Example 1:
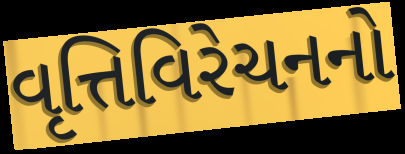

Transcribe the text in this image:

વૃત્તિવિરેચનનો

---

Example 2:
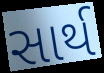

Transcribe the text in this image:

સાર્થ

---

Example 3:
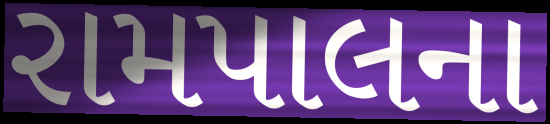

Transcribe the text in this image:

રામપાલના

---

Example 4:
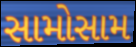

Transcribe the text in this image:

સામોસામ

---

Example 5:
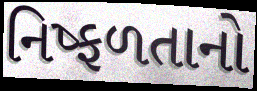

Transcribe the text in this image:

નિષ્ફળતાનો